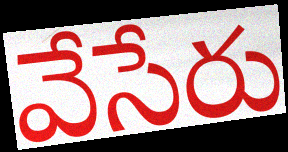
వేసేరు